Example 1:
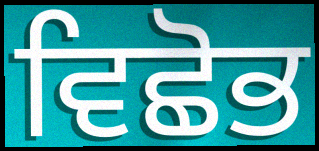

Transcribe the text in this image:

ਵਿਛੋਭ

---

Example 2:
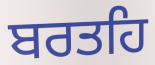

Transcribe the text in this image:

ਬਰਤਹਿ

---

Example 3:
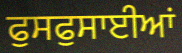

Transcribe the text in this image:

ਫੁਸਫੁਸਾਈਆਂ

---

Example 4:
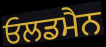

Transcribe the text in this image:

ਓਲਡਮੈਨ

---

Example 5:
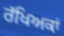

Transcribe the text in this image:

ਰੱਖਿਅਕਾਂ